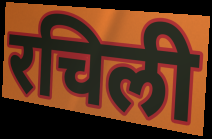
रचिली